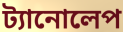
ট্যানোলেপ